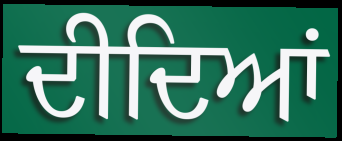
ਦੀਦਿਆਂ